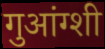
गुआंग्शी